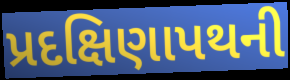
પ્રદક્ષિણાપથની